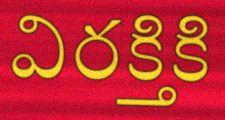
విరక్తికి